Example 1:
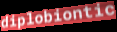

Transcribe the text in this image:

diplobiontic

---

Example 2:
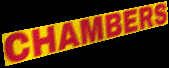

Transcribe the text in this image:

CHAMBERS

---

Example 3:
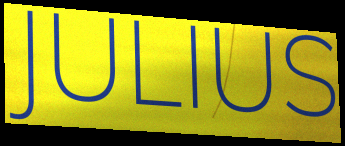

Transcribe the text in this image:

JULIUS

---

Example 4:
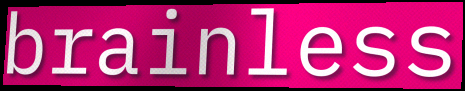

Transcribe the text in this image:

brainless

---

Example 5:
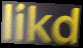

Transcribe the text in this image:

likd